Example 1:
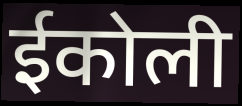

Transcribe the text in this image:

ईकोली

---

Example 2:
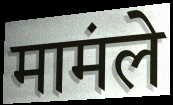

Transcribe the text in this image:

मामंले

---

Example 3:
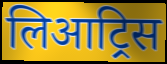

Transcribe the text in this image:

लिआट्रिस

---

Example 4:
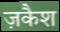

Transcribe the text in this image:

ज़कैश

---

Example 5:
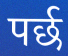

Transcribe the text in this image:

पर्छ